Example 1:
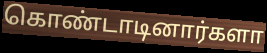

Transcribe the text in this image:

கொண்டாடினார்களா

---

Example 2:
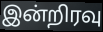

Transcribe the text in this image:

இன்றிரவு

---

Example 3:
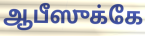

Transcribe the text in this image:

ஆபீஸுக்கே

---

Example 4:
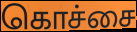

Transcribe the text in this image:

கொச்சை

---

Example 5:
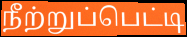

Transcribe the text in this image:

நீற்றுப்பெட்டி